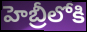
హెబ్రీలోకి